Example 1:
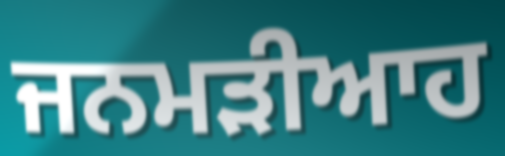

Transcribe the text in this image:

ਜਨਮੜੀਆਹ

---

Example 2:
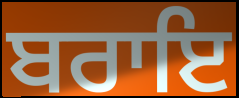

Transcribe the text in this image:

ਬਰਾਇ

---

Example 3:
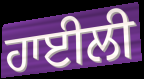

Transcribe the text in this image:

ਹਾਈਲੀ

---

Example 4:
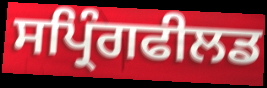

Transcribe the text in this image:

ਸਪ੍ਰਿੰਗਫੀਲਡ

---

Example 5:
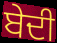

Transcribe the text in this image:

ਬੇਦੀ